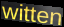
witten